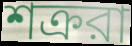
শক্ররা